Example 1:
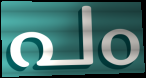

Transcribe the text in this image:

പം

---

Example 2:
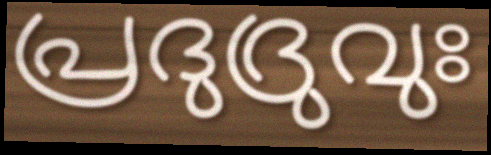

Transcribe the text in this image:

പ്രദുദ്രുവുഃ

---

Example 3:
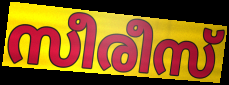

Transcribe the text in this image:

സീരീസ്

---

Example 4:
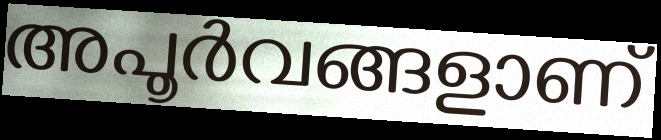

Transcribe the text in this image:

അപൂർവങ്ങളാണ്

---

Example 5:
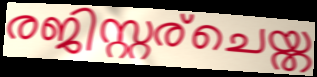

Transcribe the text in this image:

രജിസ്റ്റര്ചെയ്ത